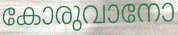
കോരുവാനോ